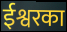
ईश्वरका